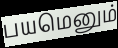
பயமெனும்